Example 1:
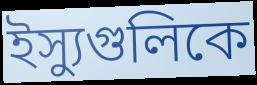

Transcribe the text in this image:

ইস্যুগুলিকে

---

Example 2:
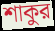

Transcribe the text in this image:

শাকুর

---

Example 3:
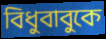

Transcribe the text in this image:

বিধুবাবুকে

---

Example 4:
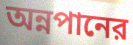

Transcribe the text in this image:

অন্নপানের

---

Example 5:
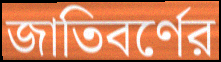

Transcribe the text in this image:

জাতিবর্ণের